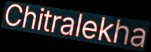
Chitralekha